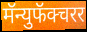
मॅन्युफॅक्चरर